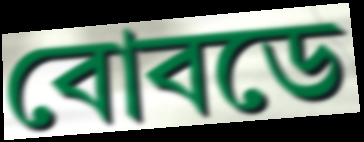
বোবডে